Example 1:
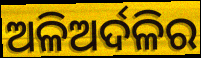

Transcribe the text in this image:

ଅଳିଅର୍ଦଳିର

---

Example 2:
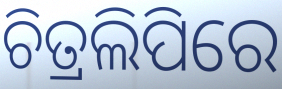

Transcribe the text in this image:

ଚିତ୍ରଲିପିରେ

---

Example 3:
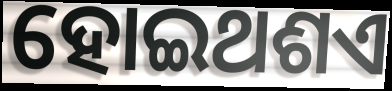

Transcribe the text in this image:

ହୋଇଥଶଏ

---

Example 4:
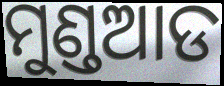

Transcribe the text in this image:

ମୁଣ୍ଡଆଡ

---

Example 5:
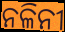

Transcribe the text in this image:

ନଳିନୀ